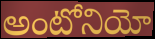
అంటోనియో